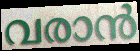
വരാൻ